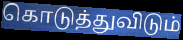
கொடுத்துவிடும்